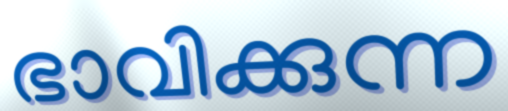
ഭാവിക്കുന്ന